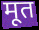
मूत